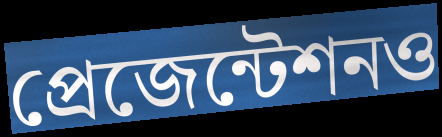
প্রেজেন্টেশনও